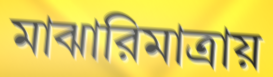
মাঝারিমাত্রায়